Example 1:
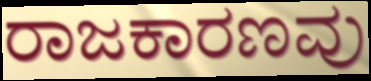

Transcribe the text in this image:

ರಾಜಕಾರಣವು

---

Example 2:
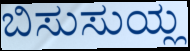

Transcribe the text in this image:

ಬಿಸುಸುಯ್ಲ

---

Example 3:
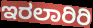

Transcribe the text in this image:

ಇರಲಾರಿರಿ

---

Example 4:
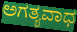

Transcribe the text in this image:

ಅಗತ್ಯವಾಧ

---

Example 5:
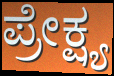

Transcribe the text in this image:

ಪ್ರೇಕ್ಷ್ಯ